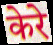
केरे